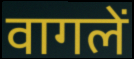
वागलें